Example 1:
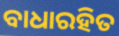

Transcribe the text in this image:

ବାଧାରହିତ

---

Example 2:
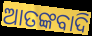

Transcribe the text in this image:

ଆତଙ୍କବାଦି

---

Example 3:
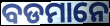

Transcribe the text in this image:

ବଡମାନେ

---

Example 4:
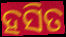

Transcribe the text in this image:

ହସିତ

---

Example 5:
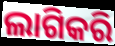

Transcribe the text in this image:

ଲାଗିକରି